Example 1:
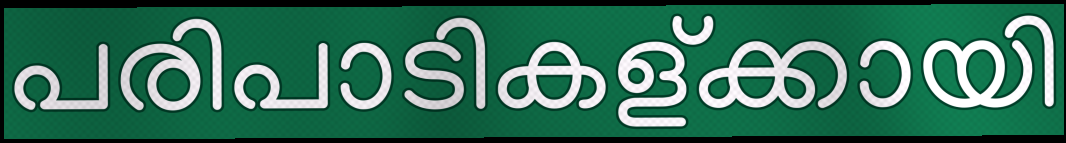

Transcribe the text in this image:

പരിപാടികള്ക്കായി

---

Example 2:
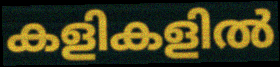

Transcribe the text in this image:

കളികളിൽ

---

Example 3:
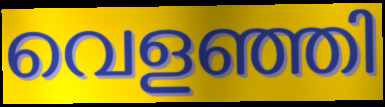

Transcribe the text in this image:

വെളഞ്ഞി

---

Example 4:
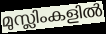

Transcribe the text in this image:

മുസ്ലിംകളിൽ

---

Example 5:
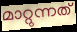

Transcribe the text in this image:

മാറ്റുന്നത്